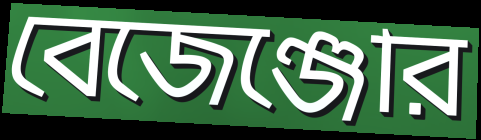
বেজেঞ্জোর